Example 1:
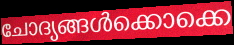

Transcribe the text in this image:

ചോദ്യങ്ങൾക്കൊക്കെ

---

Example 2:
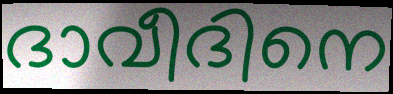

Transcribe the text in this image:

ദാവീദിനെ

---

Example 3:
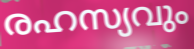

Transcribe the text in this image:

രഹസ്യവും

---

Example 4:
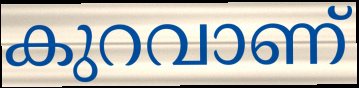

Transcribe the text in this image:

കുറവാണ്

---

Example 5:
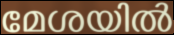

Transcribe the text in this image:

മേശയിൽ